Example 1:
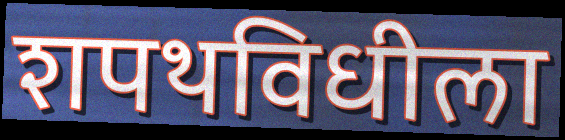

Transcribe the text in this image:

शपथविधीला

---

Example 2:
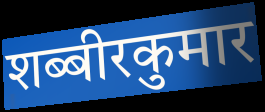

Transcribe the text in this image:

शब्बीरकुमार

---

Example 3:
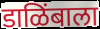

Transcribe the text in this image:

डाळिंबाला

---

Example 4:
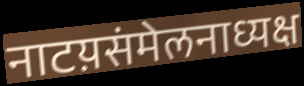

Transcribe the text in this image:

नाटय़संमेलनाध्यक्ष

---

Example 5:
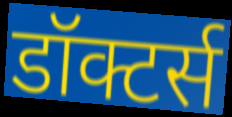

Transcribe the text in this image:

डॉक्टर्स